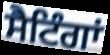
ਸੈਟਿੰਗਾਂ